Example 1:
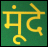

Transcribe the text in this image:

मूंदे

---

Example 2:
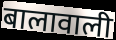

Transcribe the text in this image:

बालावाली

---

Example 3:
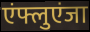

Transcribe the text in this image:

एंफ्लुएंजा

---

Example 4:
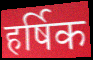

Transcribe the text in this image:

हर्षिक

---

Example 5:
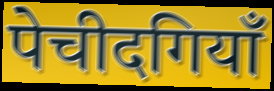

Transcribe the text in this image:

पेचीदगियाँ